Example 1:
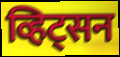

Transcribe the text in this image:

व्हिट्सन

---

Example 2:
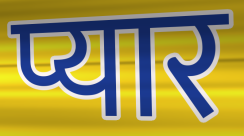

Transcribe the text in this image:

प्यार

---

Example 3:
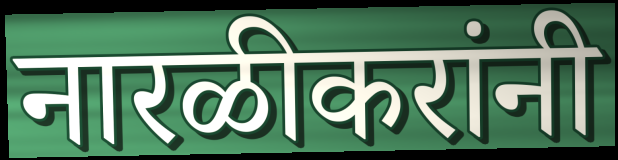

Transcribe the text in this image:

नारळीकरांनी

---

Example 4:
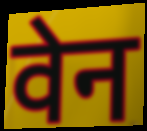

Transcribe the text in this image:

वेन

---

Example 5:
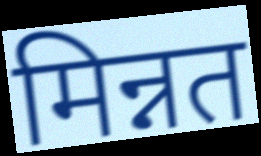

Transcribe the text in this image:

मिन्नत